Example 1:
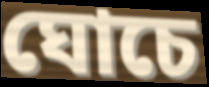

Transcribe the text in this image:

ঘোচে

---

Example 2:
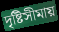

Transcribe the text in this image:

দৃষ্টিসীমায়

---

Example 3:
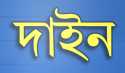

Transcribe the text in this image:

দাইন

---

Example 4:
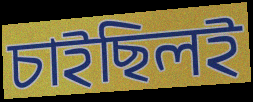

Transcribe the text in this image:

চাইছিলই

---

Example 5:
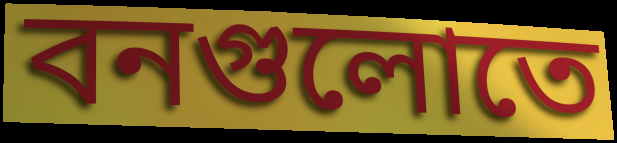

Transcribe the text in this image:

বনগুলোতে